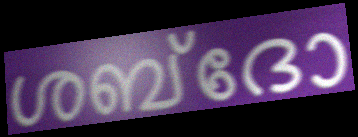
ശബ്ദോ